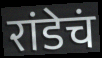
रांडेचं